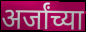
अर्जांच्या